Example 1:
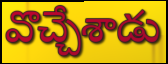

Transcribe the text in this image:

వొచ్చేశాడు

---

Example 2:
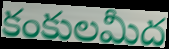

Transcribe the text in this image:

కంకులమీద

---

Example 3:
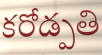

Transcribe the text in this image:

కరోడ్పతి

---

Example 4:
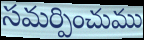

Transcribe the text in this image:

సమర్పించుము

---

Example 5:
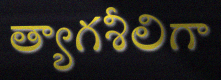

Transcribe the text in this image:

త్యాగశీలిగా